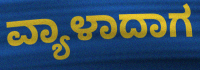
ವ್ಯಾಳಾದಾಗ